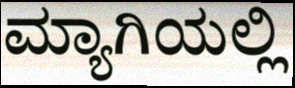
ಮ್ಯಾಗಿಯಲ್ಲಿ